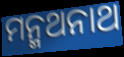
ମନ୍ମଥନାଥ